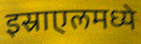
इस्राएलमध्ये